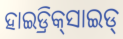
ହାଇଡ୍ରିକ୍‌ସାଇଡ୍